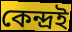
কেন্দ্ৰই